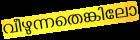
വീഴുന്നതെങ്കിലോ